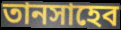
তানসাহেব